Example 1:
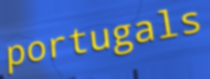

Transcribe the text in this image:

portugals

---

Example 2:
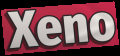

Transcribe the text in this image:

Xeno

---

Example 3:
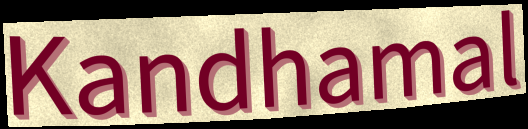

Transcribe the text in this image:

Kandhamal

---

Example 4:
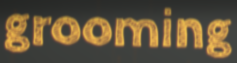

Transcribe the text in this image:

grooming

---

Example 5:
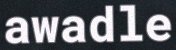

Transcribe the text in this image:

awadle